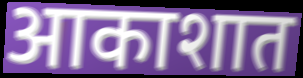
आकाशात